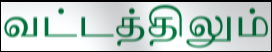
வட்டத்திலும்